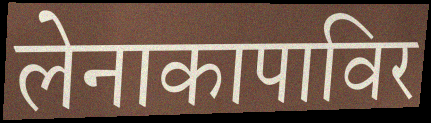
लेनाकापाविर